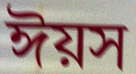
ঈয়স